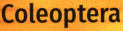
Coleoptera